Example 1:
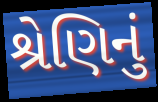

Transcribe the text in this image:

શ્રેણિનું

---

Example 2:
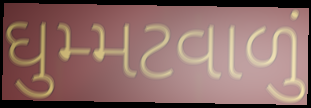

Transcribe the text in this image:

ઘુમ્મટવાળું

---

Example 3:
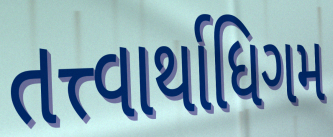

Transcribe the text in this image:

તત્ત્વાર્થાધિગમ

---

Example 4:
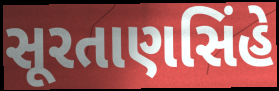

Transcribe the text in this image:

સૂરતાણસિંહે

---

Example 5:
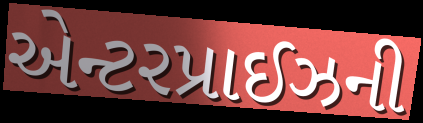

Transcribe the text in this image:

એન્ટરપ્રાઈઝની